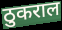
ठुकराल